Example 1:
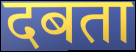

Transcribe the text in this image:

दबता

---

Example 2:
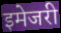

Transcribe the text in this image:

इमेजरी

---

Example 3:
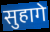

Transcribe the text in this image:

सुहागे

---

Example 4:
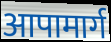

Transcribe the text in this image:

आपामार्ग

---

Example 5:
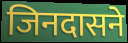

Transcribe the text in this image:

जिनदासने